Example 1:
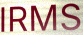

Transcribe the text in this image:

IRMS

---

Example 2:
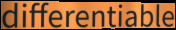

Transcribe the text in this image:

differentiable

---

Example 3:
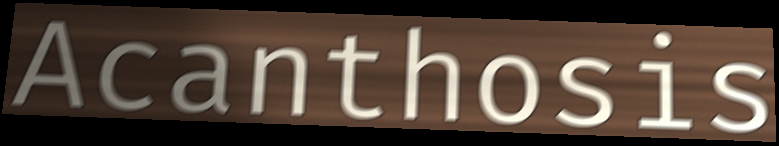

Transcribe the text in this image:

Acanthosis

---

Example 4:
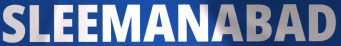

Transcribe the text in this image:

SLEEMANABAD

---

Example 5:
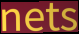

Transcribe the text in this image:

nets